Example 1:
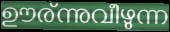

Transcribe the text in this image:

ഊര്ന്നുവീഴുന്ന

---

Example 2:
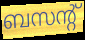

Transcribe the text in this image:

ബസന്റ്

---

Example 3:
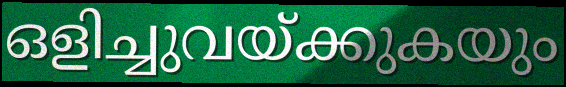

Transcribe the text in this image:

ഒളിച്ചുവയ്ക്കുകയും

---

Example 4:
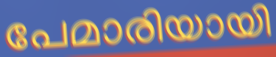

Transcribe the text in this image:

പേമാരിയായി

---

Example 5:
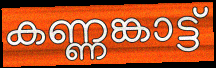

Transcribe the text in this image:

കണ്ണങ്കാട്ട്